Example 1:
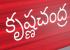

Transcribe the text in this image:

కృష్ణచంద్ర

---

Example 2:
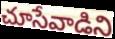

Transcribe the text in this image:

చూసేవాడిని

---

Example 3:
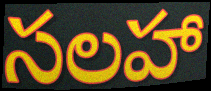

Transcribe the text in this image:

సలహా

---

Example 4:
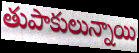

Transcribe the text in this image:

తుపాకులున్నాయి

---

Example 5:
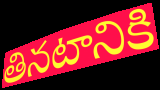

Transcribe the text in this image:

తినటానికి